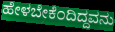
ಹೇಳಬೇಕೆಂದಿದ್ದವನು